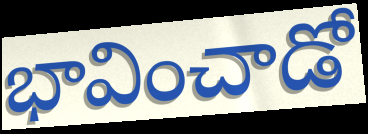
భావించాడో